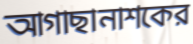
আগাছানাশকের